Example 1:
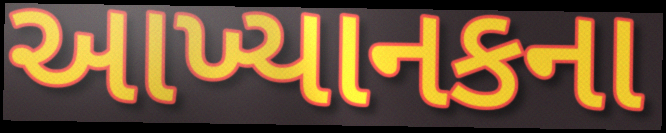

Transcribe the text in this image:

આખ્યાનકના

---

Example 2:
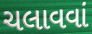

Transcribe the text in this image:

ચલાવવાં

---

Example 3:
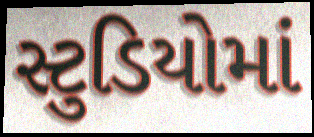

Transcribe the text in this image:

સ્ટુડિયોમાં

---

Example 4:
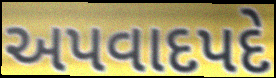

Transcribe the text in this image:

અપવાદપદે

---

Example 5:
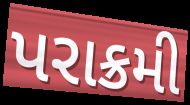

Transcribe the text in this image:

પરાક્રમી